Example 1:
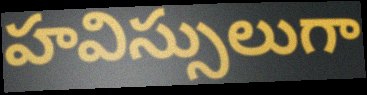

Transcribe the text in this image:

హవిస్సులుగా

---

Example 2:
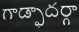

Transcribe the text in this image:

గాడ్ఫాదర్గా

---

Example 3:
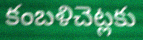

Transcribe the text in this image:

కంబళిచెట్లకు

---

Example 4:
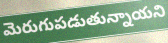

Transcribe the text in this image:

మెరుగుపడుతున్నాయని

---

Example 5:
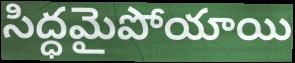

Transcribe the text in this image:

సిద్ధమైపోయాయి